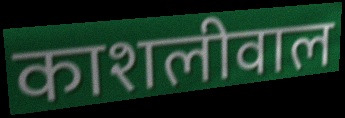
काशलीवाल